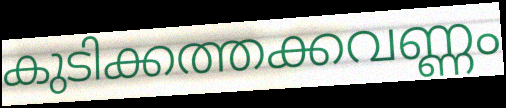
കുടിക്കത്തക്കവണ്ണം